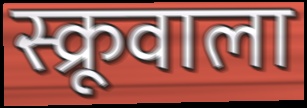
स्क्रूवाला